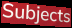
Subjects